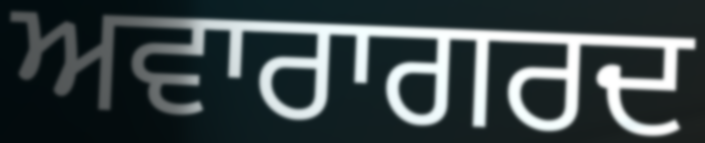
ਅਵਾਰਾਗਰਦ